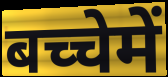
बच्चेमें